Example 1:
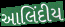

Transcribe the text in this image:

આલિંદીય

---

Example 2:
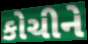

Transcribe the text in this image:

કોચીને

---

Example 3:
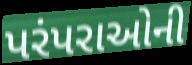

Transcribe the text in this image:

પરંપરાઓની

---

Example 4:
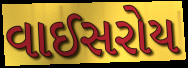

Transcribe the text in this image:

વાઈસરોય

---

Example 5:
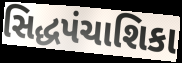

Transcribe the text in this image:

સિદ્ધપંચાશિકા